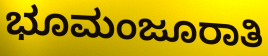
ಭೂಮಂಜೂರಾತಿ